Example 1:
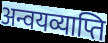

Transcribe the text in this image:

अन्वयव्याप्ति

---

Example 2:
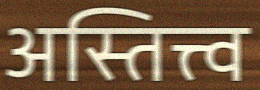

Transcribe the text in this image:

अस्तित्त्व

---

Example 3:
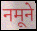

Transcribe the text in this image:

नमूने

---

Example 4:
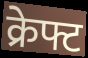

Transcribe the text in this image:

क्रेफ्ट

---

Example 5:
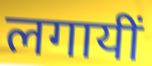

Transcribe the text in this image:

लगायीं